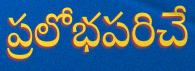
ప్రలోభపరిచే